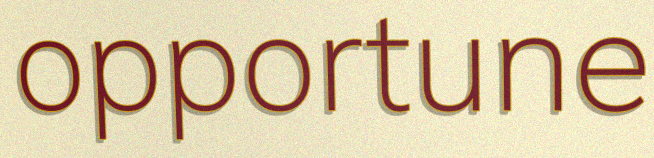
opportune